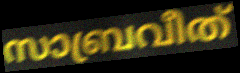
സാബ്രവീത്